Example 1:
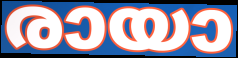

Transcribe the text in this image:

രായാ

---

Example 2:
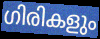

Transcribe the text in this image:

ഗിരികളും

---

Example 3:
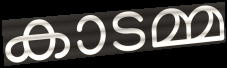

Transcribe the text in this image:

കാടമ്മ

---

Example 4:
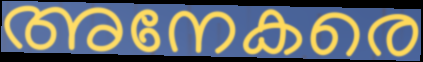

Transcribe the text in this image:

അനേകരെ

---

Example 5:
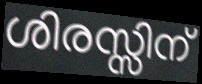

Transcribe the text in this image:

ശിരസ്സിന്